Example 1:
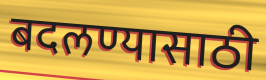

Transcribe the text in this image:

बदलण्यासाठी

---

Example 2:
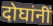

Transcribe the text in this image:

दोघांनीं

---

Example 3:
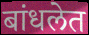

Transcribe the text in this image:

बांधलेत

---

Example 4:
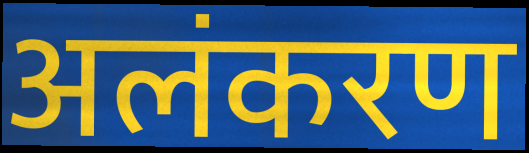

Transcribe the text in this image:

अलंकरण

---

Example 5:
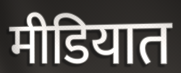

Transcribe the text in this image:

मीडियात